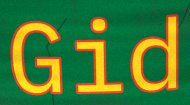
Gid